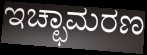
ಇಚ್ಛಾಮರಣ